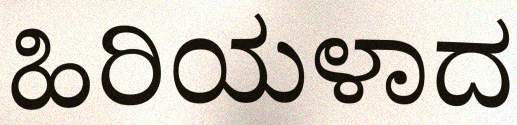
ಹಿರಿಯಳಾದ